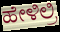
ಹೇಳಿಲ್ರಿ